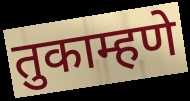
तुकाम्हणे